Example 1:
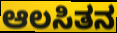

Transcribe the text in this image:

ಆಲಸಿತನ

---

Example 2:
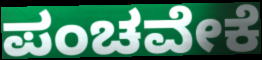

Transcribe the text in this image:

ಪಂಚವೇಕೆ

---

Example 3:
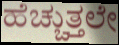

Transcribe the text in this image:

ಹೆಚ್ಚುತ್ತಲೇ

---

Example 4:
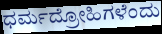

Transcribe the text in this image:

ಧರ್ಮದ್ರೋಹಿಗಳೆಂದು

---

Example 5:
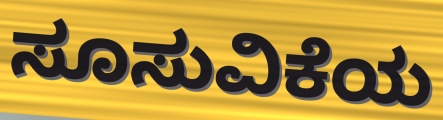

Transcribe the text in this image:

ಸೂಸುವಿಕೆಯ